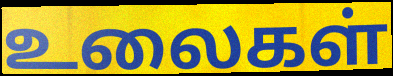
உலைகள்